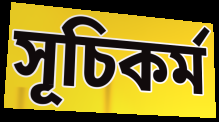
সূচিকৰ্ম